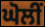
ਘੋਲੀਂ